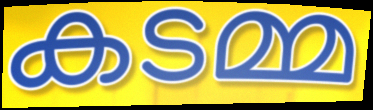
കടമ്മ